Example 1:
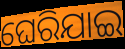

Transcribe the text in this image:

ଘେରିଯାଇ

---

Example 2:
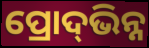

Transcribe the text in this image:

ପ୍ରୋଦ୍‌ଭିନ୍ନ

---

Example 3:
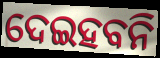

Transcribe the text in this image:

ଦେଇହବନି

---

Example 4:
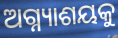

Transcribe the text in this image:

ଅଗ୍ନ୍ୟାଶୟକୁ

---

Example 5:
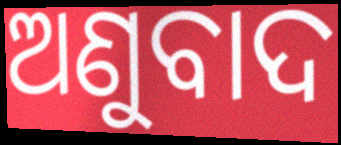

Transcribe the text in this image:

ଅଣୁବାଦ